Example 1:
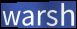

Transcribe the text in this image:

warsh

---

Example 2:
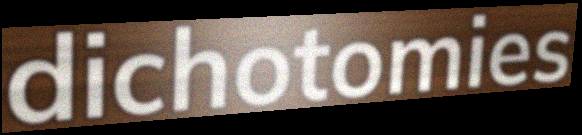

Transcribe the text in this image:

dichotomies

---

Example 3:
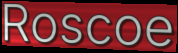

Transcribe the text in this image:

Roscoe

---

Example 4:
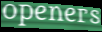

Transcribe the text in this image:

openers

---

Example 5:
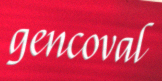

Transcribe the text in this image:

gencoval